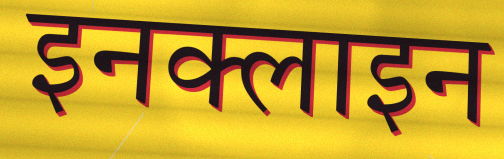
इनक्लाइन